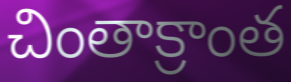
చింతాక్రాంత